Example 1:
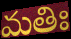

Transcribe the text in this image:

మతిః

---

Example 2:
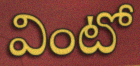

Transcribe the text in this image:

వింటో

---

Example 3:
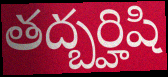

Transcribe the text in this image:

తద్బర్హిషి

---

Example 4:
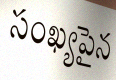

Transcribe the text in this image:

సంఖ్యపైన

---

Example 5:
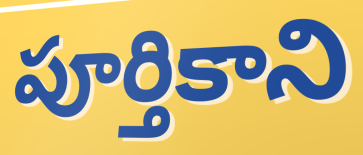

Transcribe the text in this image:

పూర్తికాని